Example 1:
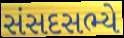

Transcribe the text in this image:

સંસદસભ્યે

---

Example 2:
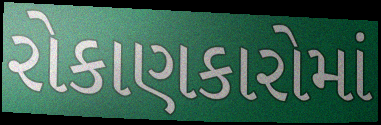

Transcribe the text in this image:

રોકાણકારોમાં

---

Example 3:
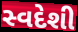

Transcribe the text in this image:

સ્વદેશી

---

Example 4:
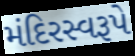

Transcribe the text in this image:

મંદિરસ્વરૂપે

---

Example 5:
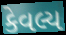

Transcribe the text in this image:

કેવલ્ય